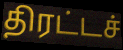
திரட்டச்